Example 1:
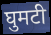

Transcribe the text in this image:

घुमटी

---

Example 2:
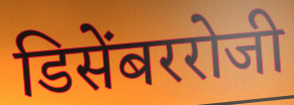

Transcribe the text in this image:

डिसेंबररोजी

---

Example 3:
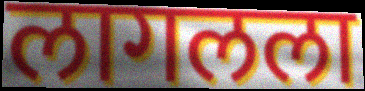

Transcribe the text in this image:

लागलला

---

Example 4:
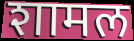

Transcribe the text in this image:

शामल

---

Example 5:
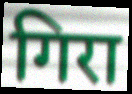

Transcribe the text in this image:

गिरा